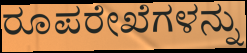
ರೂಪರೇಖೆಗಳನ್ನು